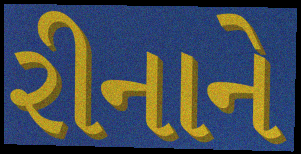
રીનાને